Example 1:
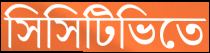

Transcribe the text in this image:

সিসিটিভিতে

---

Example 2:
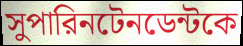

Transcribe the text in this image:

সুপারিনটেনডেন্টকে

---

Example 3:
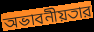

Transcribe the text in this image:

অভাবনীয়তার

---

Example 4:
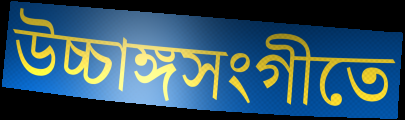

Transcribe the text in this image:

উচ্চাঙ্গসংগীতে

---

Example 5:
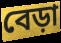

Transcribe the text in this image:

বেড়া